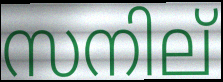
സനില്